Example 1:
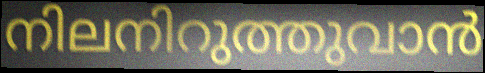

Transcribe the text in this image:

നിലനിറുത്തുവാൻ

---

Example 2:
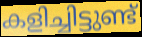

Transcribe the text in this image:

കളിച്ചിട്ടുണ്ട്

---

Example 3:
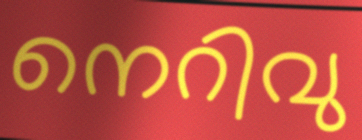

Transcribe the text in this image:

നെറിവു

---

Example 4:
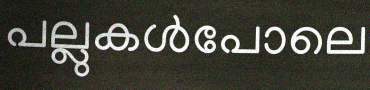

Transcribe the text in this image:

പല്ലുകൾപോലെ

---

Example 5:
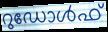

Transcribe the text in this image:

റുഡോൾഫ്